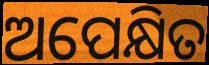
ଅପେକ୍ଷିତ